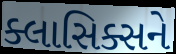
ક્લાસિક્સને